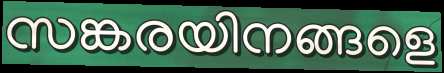
സങ്കരയിനങ്ങളെ